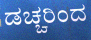
ಡಚ್ಚರಿಂದ